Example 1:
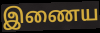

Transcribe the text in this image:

இணைய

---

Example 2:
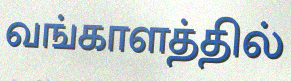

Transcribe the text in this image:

வங்காளத்தில்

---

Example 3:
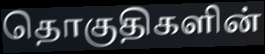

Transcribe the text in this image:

தொகுதிகளின்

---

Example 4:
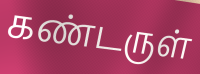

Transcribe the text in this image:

கண்டருள்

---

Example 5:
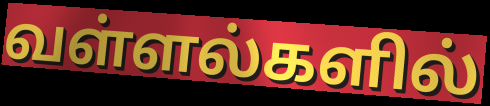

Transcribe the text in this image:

வள்ளல்களில்